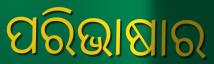
ପରିଭାଷାର